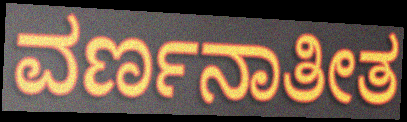
ವರ್ಣನಾತೀತ